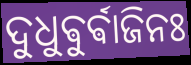
ଦୁଧୁଵୁର୍ଵାଜିନଃ